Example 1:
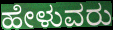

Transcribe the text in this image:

ಹೇಳುವರು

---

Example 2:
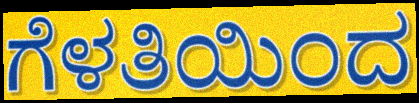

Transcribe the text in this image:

ಗೆಳತಿಯಿಂದ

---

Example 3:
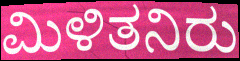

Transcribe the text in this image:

ಮಿಳಿತನಿರು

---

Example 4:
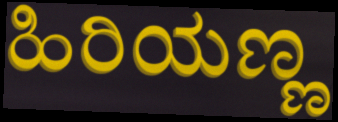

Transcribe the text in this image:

ಹಿರಿಯಣ್ಣ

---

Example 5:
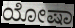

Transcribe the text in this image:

ಯೋಷಾ